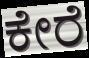
ಕೇರೆ